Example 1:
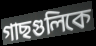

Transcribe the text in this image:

গাছগুলিকে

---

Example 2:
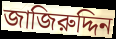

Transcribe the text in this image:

জাজিরুদ্দিন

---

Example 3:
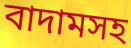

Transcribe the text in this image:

বাদামসহ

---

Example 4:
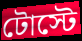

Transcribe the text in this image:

টোস্টে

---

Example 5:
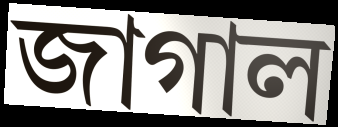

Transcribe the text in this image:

জাগাল